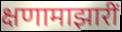
क्षणामाझारीं